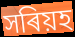
সৰিয়হ